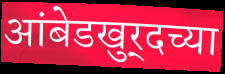
आंबेडखुर्दच्या